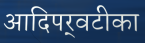
आदिपर्वटीका